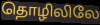
தொழிலிலே